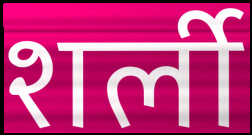
शर्ली